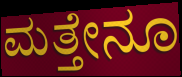
ಮತ್ತೇನೂ